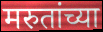
मरुतांच्या